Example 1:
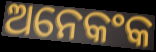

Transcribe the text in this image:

ଅନେକଂକ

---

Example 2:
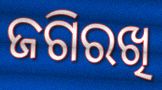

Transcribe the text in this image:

ଜଗିରଖି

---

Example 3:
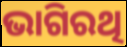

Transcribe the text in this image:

ଭାଗିରଥି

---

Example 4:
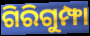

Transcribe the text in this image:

ଗିରିଗୁମ୍ଫା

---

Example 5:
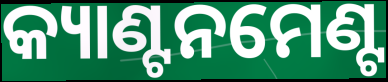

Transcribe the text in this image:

କ୍ୟାଣ୍ଟନମେଣ୍ଟ